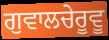
ਗੁਵਾਲਚੇਰੂਵੂ